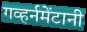
गव्हर्नमेंटानी